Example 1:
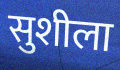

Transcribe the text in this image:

सुशीला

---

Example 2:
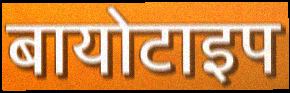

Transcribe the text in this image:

बायोटाइप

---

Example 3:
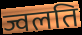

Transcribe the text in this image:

ज्वलति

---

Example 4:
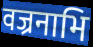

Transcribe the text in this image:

वज्रनाभि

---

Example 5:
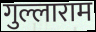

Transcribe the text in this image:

गुल्लाराम